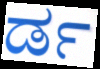
ರ್ಡ